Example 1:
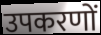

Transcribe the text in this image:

उपकरणों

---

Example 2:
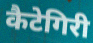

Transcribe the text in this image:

कैटेगिरी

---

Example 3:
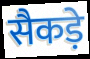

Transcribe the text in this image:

सैकड़े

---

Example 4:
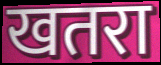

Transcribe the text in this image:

खतरा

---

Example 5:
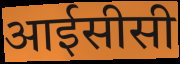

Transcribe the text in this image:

आईसीसी